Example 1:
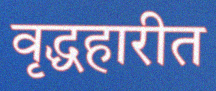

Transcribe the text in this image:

वृद्धहारीत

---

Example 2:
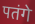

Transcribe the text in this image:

पतंगे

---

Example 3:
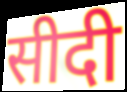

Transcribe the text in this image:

सीदी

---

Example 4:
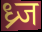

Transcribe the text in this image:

ध्र्ज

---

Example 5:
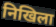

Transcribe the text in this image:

निखिला